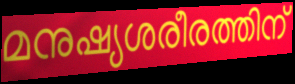
മനുഷ്യശരീരത്തിന്